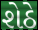
શેઠે